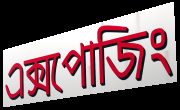
এক্সপোজিং